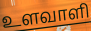
உளவாளி